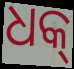
ଧକ୍